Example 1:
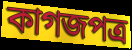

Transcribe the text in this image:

কাগজপত্র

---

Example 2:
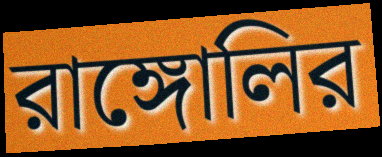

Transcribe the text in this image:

রাঙ্গোলির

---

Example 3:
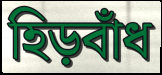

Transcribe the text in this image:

হিড়বাঁধ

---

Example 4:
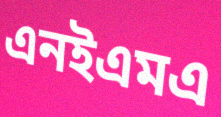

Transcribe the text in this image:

এনইএমএ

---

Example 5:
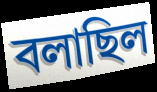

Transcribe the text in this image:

বলাছিল